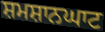
ਸ਼ਮਸ਼ਾਨਘਾਟ